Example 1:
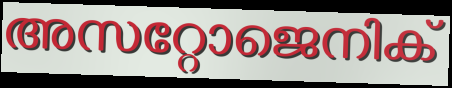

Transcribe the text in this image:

അസറ്റോജെനിക്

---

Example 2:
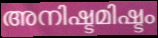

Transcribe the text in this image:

അനിഷ്ടമിഷ്ടം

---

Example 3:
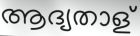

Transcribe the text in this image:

ആദ്യതാള്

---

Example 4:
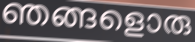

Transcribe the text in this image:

ഞങ്ങളൊരു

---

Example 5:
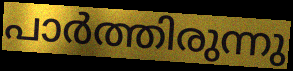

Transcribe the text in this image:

പാർത്തിരുന്നു